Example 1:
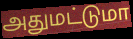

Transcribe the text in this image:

அதுமட்டுமா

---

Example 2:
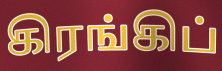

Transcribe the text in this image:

கிரங்கிப்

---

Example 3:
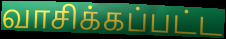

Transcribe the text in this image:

வாசிக்கப்பட்ட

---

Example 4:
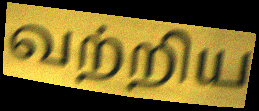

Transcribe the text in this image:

வற்றிய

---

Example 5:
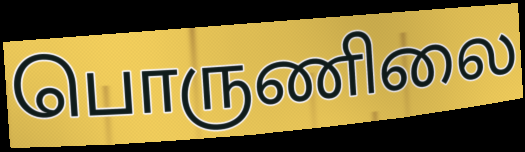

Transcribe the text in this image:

பொருணிலை